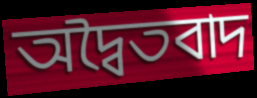
অদ্বৈতবাদ